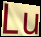
Lu